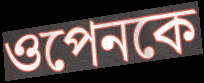
ওপেনকে